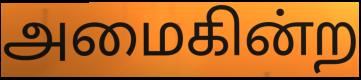
அமைகின்ற